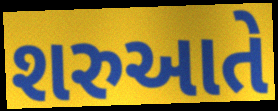
શરુઆતે